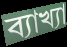
ব্যাখ্যা